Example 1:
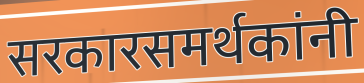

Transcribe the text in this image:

सरकारसमर्थकांनी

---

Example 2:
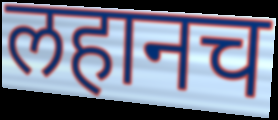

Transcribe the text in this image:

लहानच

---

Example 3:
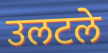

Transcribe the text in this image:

उलटले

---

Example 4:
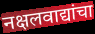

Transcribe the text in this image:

नक्षलवाद्यांचा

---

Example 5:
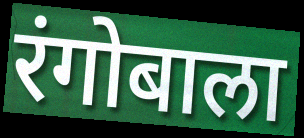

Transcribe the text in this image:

रंगोबाला